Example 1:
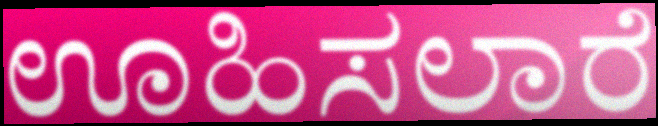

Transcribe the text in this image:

ಊಹಿಸಲಾರೆ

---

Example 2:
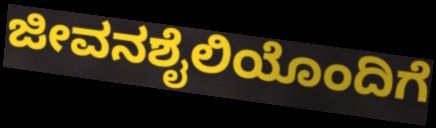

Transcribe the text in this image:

ಜೀವನಶೈಲಿಯೊಂದಿಗೆ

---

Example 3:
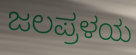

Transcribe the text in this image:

ಜಲಪ್ರಳಯ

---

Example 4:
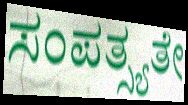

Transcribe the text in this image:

ಸಂಪತ್ಸ್ಯತೇ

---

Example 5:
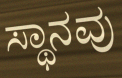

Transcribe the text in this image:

ಸ್ಥಾನವು